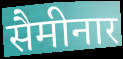
सैमीनार